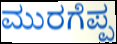
ಮುರಗೆಪ್ಪ